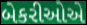
બેકરીઓએ